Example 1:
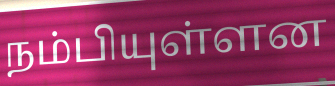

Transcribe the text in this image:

நம்பியுள்ளன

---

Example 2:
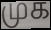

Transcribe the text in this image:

முக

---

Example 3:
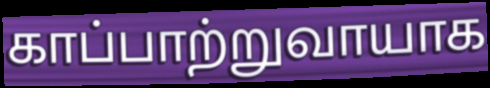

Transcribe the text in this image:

காப்பாற்றுவாயாக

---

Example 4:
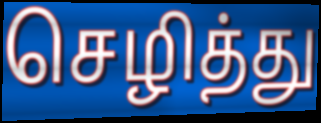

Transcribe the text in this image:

செழித்து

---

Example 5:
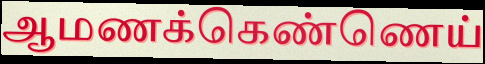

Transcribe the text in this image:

ஆமணக்கெண்ணெய்